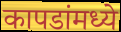
कापडांमध्ये